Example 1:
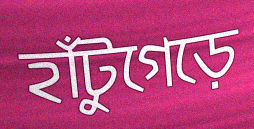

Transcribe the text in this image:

হাঁটুগেড়ে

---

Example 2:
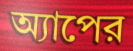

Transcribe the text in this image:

অ্যাপের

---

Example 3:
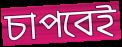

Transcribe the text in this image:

চাপবেই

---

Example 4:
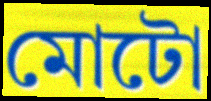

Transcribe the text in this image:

মোটো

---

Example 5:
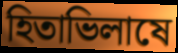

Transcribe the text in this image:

হিতাভিলাষে